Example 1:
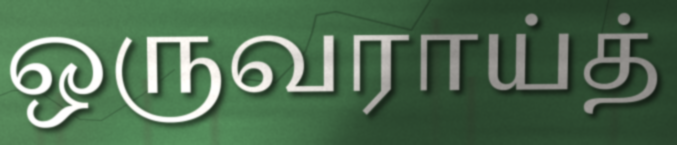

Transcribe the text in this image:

ஒருவராய்த்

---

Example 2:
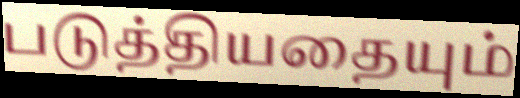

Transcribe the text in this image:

படுத்தியதையும்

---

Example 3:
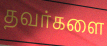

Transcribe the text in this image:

தவர்களை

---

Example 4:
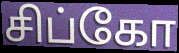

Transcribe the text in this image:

சிப்கோ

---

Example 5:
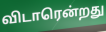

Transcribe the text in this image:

விடாரென்றது